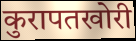
कुरापतखोरी